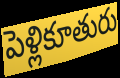
పెళ్లికూతురు